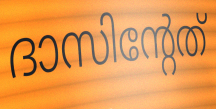
ദാസിന്റേത്